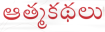
ఆత్మకథలు